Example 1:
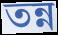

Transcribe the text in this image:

তন্ন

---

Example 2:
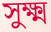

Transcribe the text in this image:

সুক্ষ্ম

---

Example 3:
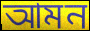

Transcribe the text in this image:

আমন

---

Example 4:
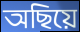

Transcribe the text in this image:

অছিয়ে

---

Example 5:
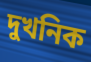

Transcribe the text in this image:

দুখনিক